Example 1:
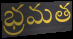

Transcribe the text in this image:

భ్రమత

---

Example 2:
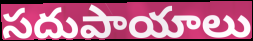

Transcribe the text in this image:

సదుపాయాలు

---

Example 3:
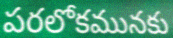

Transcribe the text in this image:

పరలోకమునకు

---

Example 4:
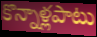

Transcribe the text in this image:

కొన్నాళ్లపాటు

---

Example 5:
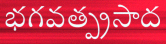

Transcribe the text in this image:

భగవత్ప్రసాద